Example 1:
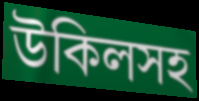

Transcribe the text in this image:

উকিলসহ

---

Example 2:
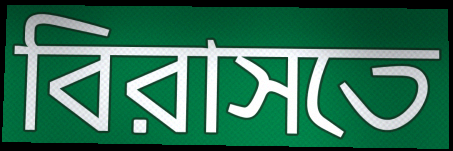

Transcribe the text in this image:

বিরাসতে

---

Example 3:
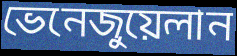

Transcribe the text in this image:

ভেনেজুয়েলান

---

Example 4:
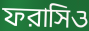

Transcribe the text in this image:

ফরাসিও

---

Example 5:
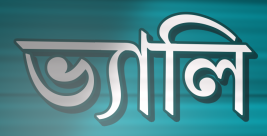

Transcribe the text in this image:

ভ্যালি